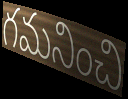
గమనించి